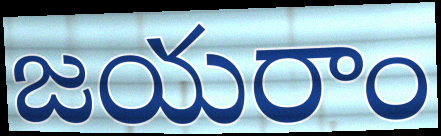
జయరాం